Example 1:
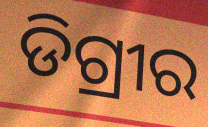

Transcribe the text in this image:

ଡିଗ୍ରୀର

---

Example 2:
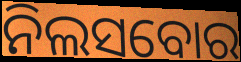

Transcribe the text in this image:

ନିଲସବୋର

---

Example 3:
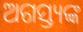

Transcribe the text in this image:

ଅଗସ୍ତ୍ୟଙ୍କ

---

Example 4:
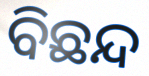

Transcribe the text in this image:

ବିଛନ୍ଦ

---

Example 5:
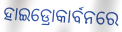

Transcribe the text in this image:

ହାଇଡ୍ରୋକାର୍ବନରେ